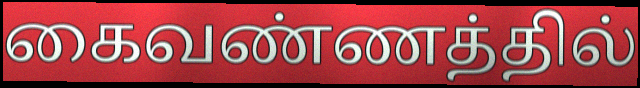
கைவண்ணத்தில்